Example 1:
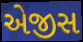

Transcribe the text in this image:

એજીસ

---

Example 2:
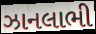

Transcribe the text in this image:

ઝાનલાભી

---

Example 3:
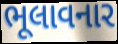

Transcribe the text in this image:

ભૂલાવનાર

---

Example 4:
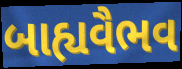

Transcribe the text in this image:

બાહ્યવૈભવ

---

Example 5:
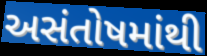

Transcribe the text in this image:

અસંતોષમાંથી